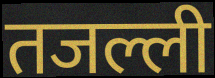
तजल्ली